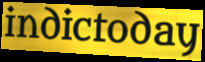
indictoday